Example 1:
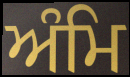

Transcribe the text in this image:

ਅੰਮਿ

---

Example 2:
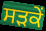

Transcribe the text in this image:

ਸੜਕੇਂ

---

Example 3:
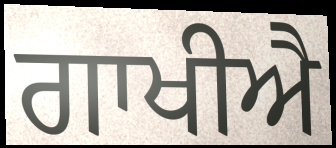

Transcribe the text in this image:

ਗਾਖੀਐ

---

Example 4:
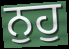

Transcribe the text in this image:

ਨੁਹੁ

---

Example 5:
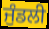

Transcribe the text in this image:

ਜੁੰਡਲੀ